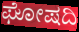
ಘೋಷದಿ